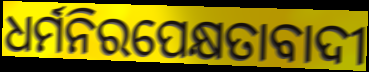
ଧର୍ମନିରପେକ୍ଷତାବାଦୀ